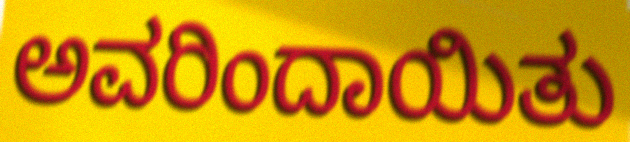
ಅವರಿಂದಾಯಿತು